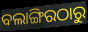
ବଲାଙ୍ଗିରଠାରୁ